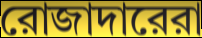
রোজাদারেরা